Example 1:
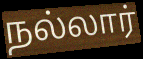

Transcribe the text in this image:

நல்லார்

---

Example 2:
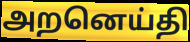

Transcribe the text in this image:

அறனெய்தி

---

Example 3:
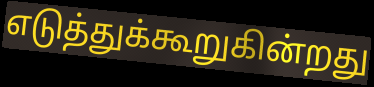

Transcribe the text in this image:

எடுத்துக்கூறுகின்றது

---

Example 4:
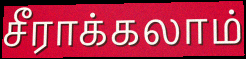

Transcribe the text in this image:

சீராக்கலாம்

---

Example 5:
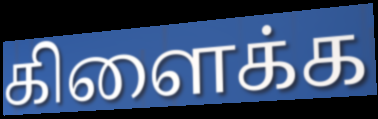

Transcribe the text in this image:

கிளைக்க